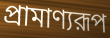
প্রামাণ্যরূপ